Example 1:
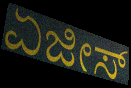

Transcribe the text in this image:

ಏಜೀಸ್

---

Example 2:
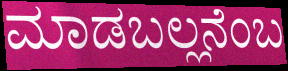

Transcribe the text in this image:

ಮಾಡಬಲ್ಲನೆಂಬ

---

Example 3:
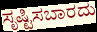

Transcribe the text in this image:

ಸೃಷ್ಟಿಸಬಾರದು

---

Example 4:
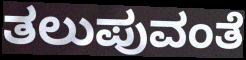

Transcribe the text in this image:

ತಲುಪುವಂತೆ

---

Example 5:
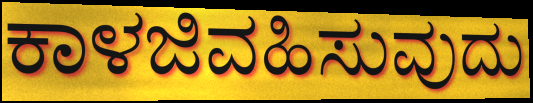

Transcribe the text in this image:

ಕಾಳಜಿವಹಿಸುವುದು